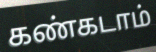
கண்கடாம்